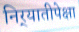
निर्यातीपेक्षा